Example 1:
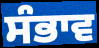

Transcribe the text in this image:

ਸੰਭਾਵ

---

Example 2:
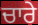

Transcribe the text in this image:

ਚਾਰੇ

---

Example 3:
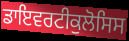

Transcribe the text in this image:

ਡਾਇਵਰਟੀਕੁਲੋਸਿਸ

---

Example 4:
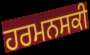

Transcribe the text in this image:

ਹਰਮਨਸਕੀ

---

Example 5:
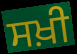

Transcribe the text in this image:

ਸਖ਼ੀ